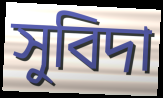
সুবিদা